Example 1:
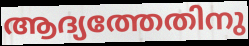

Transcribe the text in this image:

ആദ്യത്തേതിനു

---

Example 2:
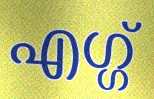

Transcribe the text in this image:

എഗ്ഗ്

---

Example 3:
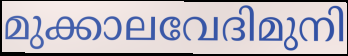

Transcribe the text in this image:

മുക്കാലവേദിമുനി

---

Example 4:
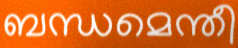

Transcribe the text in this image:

ബന്ധമെന്തീ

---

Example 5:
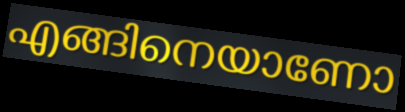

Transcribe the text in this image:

എങ്ങിനെയാണോ